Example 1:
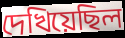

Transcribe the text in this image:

দেখিয়েছিল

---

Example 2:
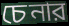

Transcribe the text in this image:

চেনার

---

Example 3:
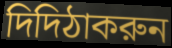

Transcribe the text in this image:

দিদিঠাকরুন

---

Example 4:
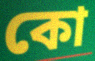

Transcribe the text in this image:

কো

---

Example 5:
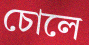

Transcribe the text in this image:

চোলে